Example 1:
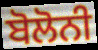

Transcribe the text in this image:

ਬੋਲੋਨੀ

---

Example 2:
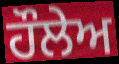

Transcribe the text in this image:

ਹੌਲੇਅ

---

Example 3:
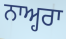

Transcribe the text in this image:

ਨਾਅ੍ਹਰਾ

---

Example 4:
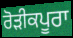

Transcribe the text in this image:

ਰੋੜੀਕਪੂਰਾ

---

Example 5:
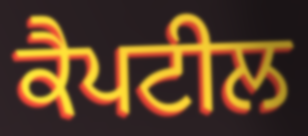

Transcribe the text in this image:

ਕੈਪਟੀਲ